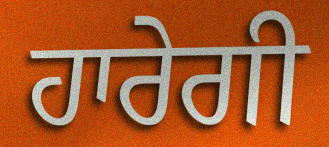
ਹਾਰੇਗੀ